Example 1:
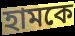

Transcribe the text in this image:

হামকে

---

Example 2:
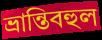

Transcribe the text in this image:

ভ্রান্তিবহুল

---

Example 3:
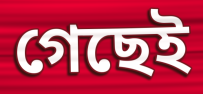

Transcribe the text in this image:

গেছেই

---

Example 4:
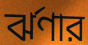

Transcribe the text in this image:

র্ঝণার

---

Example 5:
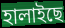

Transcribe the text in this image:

হালাইছে